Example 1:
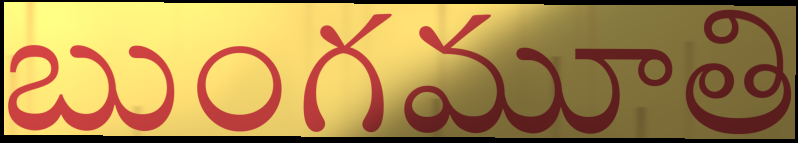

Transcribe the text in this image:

బుంగమూతి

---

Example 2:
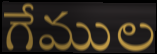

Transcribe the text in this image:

గేముల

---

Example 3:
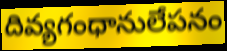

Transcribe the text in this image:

దివ్యగంధానులేపనం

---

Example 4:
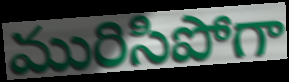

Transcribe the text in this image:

మురిసిపోగా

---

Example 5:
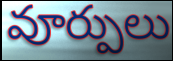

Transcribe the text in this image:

వూర్పులు